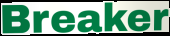
Breaker